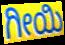
ಗೀಯಿ